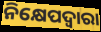
ନିକ୍ଷେପଦ୍ୱାରା